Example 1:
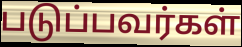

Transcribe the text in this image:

படுப்பவர்கள்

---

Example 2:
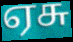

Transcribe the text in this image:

ஏசு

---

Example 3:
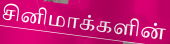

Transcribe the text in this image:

சினிமாக்களின்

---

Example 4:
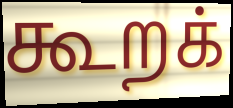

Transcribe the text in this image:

கூறக்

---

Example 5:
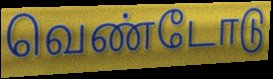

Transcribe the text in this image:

வெண்டோடு